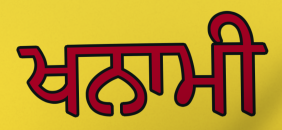
ਖਨਾਮੀ